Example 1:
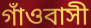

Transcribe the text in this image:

গাঁওবাসী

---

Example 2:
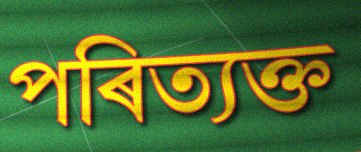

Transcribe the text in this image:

পৰিত্যক্ত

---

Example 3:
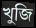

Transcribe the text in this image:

খুজি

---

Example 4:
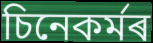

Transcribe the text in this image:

চিনেকৰ্মৰ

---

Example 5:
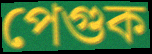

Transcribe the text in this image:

পেগুক